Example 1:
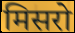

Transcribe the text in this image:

मिसरो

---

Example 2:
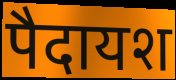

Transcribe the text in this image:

पैदायश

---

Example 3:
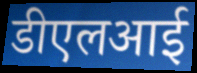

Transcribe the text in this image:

डीएलआई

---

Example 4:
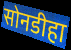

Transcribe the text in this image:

सोनडीहा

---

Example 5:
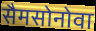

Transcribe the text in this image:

सैमसोनोवा